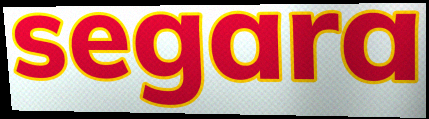
segara